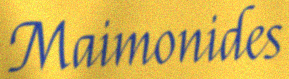
Maimonides